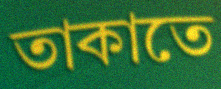
তাকাতে